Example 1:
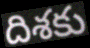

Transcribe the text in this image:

దిశకు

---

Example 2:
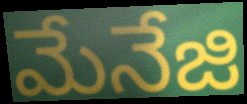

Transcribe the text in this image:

మేనేజి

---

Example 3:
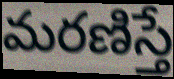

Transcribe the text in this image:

మరణిస్తే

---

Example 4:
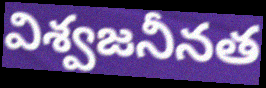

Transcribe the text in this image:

విశ్వజనీనత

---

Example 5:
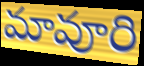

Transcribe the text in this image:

మావూరి